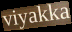
viyakka